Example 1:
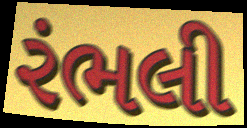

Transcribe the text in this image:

રંભલી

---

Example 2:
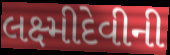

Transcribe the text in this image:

લક્ષ્મીદેવીની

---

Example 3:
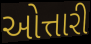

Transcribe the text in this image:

ઓત્તારી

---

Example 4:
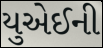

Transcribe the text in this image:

યુએઈની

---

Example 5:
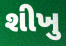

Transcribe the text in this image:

શીખુ